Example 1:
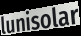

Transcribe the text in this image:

lunisolar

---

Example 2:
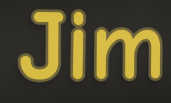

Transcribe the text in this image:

Jim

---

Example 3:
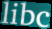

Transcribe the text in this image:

libc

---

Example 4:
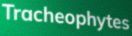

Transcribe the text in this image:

Tracheophytes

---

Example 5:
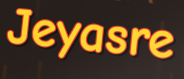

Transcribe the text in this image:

Jeyasre